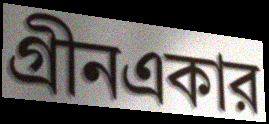
গ্রীনএকার